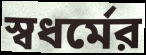
স্বধর্মের